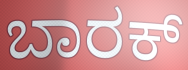
ಬಾರಕ್